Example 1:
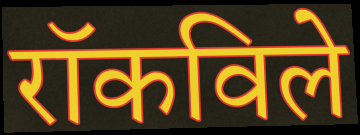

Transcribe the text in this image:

रॉकविले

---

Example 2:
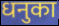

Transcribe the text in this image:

धनुका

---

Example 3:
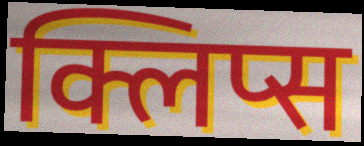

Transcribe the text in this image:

क्लिप्स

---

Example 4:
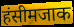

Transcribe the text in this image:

हंसीमजाक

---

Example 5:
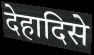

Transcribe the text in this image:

देहादिसे